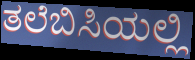
ತಲೆಬಿಸಿಯಲ್ಲಿ